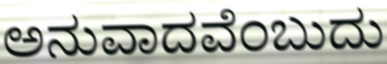
ಅನುವಾದವೆಂಬುದು